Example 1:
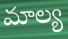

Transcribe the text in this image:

మాల్య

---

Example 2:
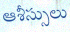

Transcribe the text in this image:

ఆశీస్సులు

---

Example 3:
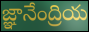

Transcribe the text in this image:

జ్ఞానేంద్రియ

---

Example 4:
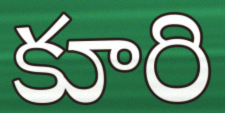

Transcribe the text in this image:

కూరి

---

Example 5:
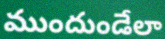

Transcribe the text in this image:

ముందుండేలా